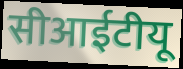
सीआईटीयू